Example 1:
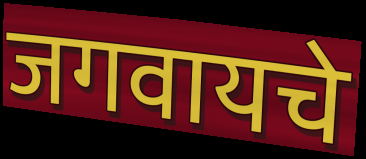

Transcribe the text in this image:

जगवायचे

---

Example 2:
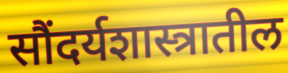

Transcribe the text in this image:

सौंदर्यशास्त्रातील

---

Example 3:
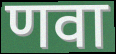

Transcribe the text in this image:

णवा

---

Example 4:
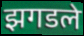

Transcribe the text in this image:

झगडले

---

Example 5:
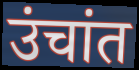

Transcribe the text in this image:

उंचांत